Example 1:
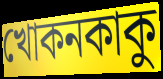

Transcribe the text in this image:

খোকনকাকু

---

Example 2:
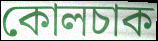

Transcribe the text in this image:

কোলচাক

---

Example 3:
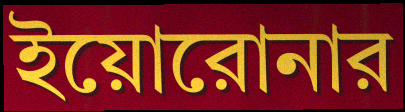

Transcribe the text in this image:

ইয়োরোনার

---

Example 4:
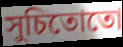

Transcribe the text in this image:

সুচিতোতো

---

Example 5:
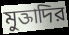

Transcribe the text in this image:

মুক্তাদির